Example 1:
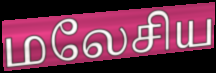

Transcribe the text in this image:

மலேசிய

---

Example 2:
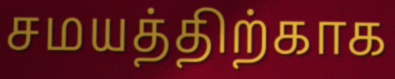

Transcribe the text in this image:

சமயத்திற்காக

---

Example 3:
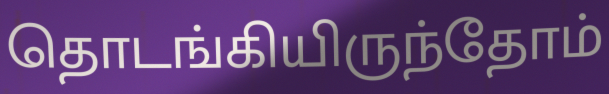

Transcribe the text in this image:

தொடங்கியிருந்தோம்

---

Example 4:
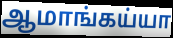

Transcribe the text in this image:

ஆமாங்கய்யா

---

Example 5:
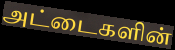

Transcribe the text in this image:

அட்டைகளின்